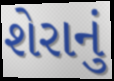
શેરાનું